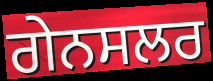
ਗੇਨਸਲਰ